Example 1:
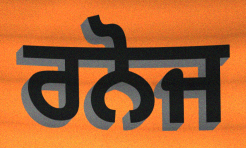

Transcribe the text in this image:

ਰਨੋਜ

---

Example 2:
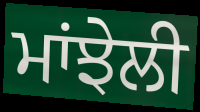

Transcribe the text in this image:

ਮਾਂਝੇਲੀ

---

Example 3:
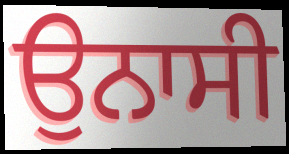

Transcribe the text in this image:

ਉਨਾਸੀ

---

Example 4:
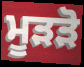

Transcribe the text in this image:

ਮੂੜੜੋ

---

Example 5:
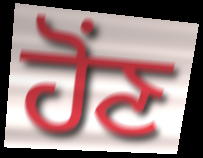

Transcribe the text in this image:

ਹੋਂਣ